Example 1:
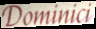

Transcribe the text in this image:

Dominici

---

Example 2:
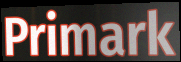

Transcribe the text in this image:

Primark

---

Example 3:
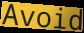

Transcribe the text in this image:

Avoid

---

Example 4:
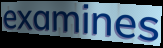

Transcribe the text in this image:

examines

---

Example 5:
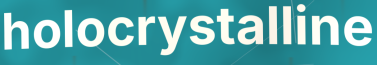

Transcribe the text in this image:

holocrystalline